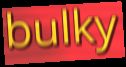
bulky